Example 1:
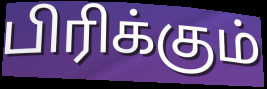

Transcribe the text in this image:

பிரிக்கும்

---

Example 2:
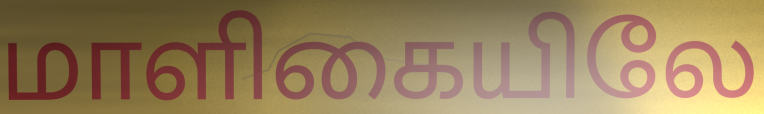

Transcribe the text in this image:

மாளிகையிலே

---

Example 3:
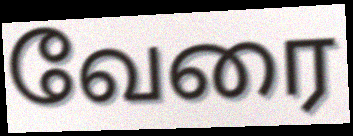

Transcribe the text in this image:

வேரை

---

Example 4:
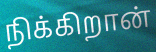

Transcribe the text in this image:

நிக்கிறான்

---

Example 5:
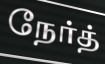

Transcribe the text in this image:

நேர்த்